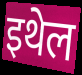
इथेल